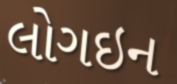
લોગઇન